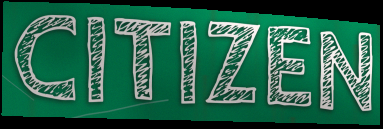
CITIZEN